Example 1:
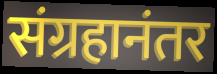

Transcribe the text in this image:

संग्रहानंतर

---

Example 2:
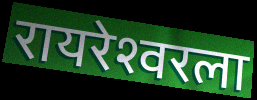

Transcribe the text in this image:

रायरेश्वरला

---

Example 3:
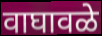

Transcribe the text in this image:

वाघावळे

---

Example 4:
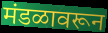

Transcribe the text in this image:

मंडळावरून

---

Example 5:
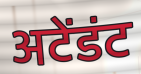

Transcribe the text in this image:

अटेंडंट